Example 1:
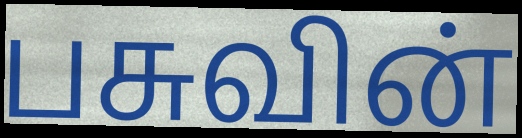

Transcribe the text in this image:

பசுவின்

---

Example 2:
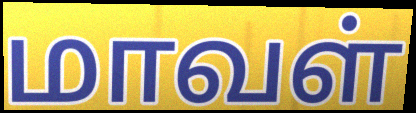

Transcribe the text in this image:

மாவள்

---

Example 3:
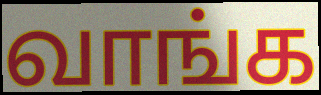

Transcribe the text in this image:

வாங்க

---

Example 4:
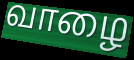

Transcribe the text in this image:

வாழை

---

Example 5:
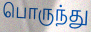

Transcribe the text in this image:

பொருந்து